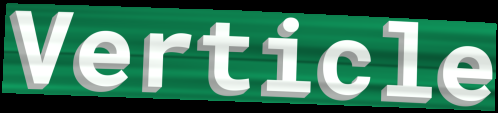
Verticle